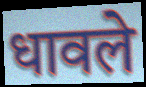
धावले